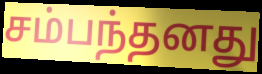
சம்பந்தனது